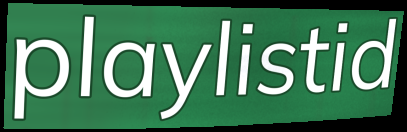
playlistid